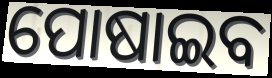
ପୋଷାଇବ